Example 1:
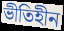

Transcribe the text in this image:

ভীতিহীন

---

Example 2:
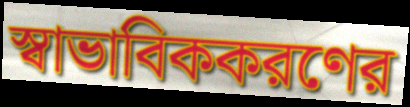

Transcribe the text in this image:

স্বাভাবিককরণের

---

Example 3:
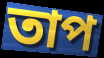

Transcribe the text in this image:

তাপ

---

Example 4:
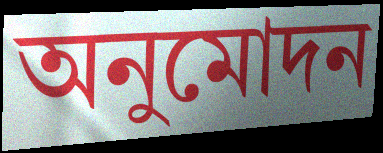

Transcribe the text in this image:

অনুমোদন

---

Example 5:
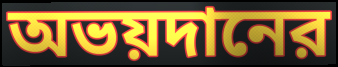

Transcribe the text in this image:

অভয়দানের